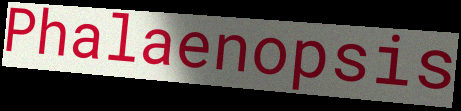
Phalaenopsis